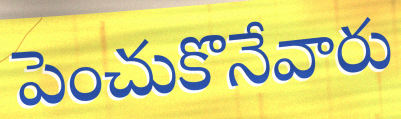
పెంచుకొనేవారు